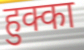
हुक्का